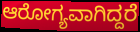
ಆರೋಗ್ಯವಾಗಿದ್ದರೆ